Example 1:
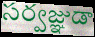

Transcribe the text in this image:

సర్వజ్ఞుడా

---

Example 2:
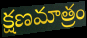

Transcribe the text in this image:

క్షణమాత్రం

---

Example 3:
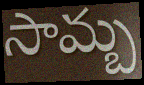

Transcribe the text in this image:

సామ్బ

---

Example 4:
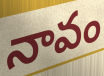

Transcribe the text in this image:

నావం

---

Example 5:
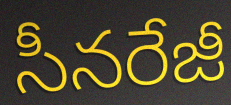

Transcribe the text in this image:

సీనరేజీ